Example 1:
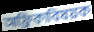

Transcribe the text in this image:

আফ্রিকাবিষয়ক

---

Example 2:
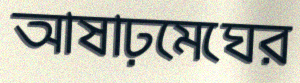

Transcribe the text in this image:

আষাঢ়মেঘের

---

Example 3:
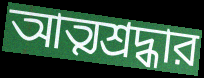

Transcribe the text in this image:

আত্মশ্রদ্ধার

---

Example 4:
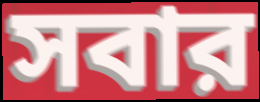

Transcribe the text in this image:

সবার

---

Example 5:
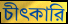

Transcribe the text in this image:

চীৎকারি